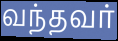
வந்தவர்